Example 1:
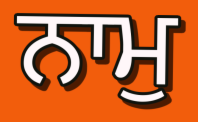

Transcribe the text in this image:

ਨਾਮੁ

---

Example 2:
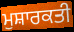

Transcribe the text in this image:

ਮੁਸ਼ਾਰਕਤੀ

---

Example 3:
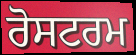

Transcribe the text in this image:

ਰੋਸਟਰਮ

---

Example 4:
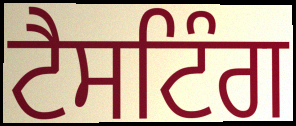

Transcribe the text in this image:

ਟੈਸਟਿੰਗ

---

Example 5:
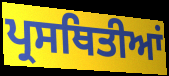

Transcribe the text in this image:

ਪ੍ਰਸਥਿਤੀਆਂ